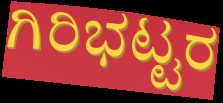
ಗಿರಿಭಟ್ಟರ